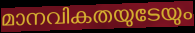
മാനവികതയുടേയും